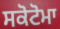
ਸਕੋਟੋਮਾ